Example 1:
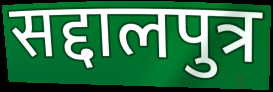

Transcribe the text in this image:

सद्दालपुत्र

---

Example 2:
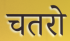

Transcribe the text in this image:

चतरो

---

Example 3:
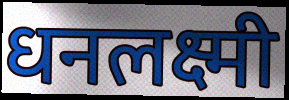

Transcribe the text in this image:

धनलक्ष्मी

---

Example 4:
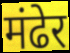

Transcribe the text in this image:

मंढेर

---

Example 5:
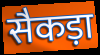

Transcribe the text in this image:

सैकड़ा